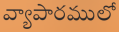
వ్యాపారములో